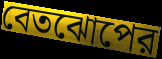
বেতঝোপের